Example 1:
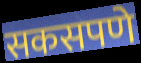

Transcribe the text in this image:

सकसपणे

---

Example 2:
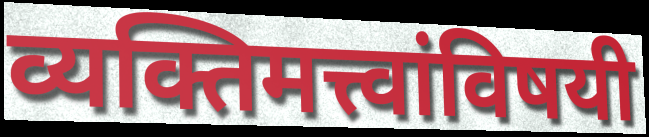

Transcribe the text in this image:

व्यक्तिमत्त्वांविषयी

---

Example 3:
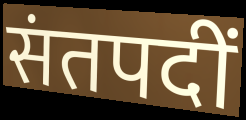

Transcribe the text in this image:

संतपदीं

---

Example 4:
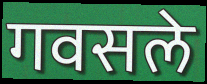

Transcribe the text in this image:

गवसले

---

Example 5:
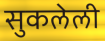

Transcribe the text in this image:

सुकलेली